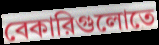
বেকারিগুলোতে